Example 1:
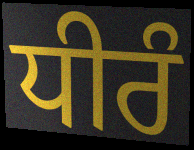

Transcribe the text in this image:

ਧੀਰੰ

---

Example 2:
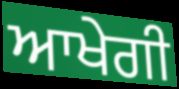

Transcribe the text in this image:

ਆਖੇਗੀ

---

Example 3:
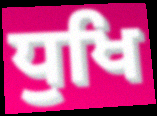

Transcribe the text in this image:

ਧੁਖਿ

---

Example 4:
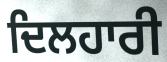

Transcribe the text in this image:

ਦਿਲਹਾਰੀ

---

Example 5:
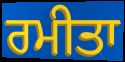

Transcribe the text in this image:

ਰਮੀਤਾ